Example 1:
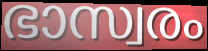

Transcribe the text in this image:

ഭാസ്വരം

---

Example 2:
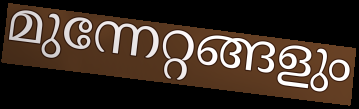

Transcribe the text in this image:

മുന്നേറ്റങ്ങളും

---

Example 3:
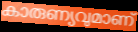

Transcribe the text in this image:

കാരുണ്യവുമാണ്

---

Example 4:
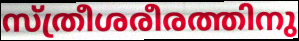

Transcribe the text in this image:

സ്ത്രീശരീരത്തിനു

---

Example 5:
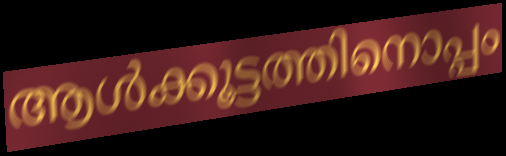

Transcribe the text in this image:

ആൾക്കൂട്ടത്തിനൊപ്പം